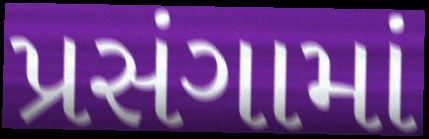
પ્રસંગામાં